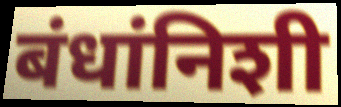
बंधांनिशी